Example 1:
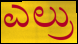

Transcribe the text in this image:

ಎಲ್ರು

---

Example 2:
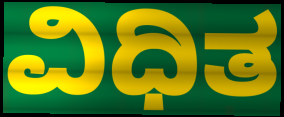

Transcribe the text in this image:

ವಿಧಿತ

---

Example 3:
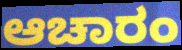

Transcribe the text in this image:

ಆಚಾರಂ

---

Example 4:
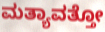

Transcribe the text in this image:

ಮತ್ಯಾವತ್ತೋ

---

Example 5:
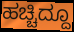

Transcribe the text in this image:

ಹಚ್ಚಿದ್ದೂ